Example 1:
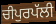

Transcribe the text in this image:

ਚੀਪੁਰਪੱਲੀ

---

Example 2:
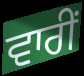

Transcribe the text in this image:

ਵਾਰੀਂ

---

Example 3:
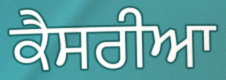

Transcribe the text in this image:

ਕੈਸਰੀਆ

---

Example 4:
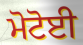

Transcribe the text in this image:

ਮੋਟੋਈ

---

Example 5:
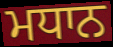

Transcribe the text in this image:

ਮਧਾਨ